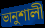
ভানুশালী